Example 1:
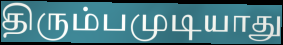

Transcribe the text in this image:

திரும்பமுடியாது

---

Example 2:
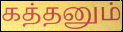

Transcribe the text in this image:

கத்தனும்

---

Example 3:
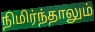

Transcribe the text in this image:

நிமிர்ந்தாலும்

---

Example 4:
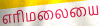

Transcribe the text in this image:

எரிமலையை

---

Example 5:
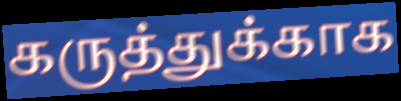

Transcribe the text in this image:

கருத்துக்காக